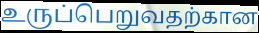
உருப்பெறுவதற்கான